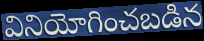
వినియోగించబడిన